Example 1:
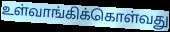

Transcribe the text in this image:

உள்வாங்கிக்கொள்வது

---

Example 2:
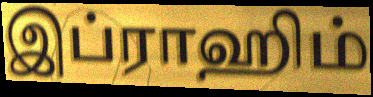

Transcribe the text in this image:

இப்ராஹிம்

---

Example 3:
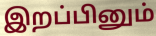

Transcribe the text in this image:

இறப்பினும்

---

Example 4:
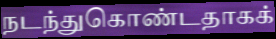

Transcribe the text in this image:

நடந்துகொண்டதாகக்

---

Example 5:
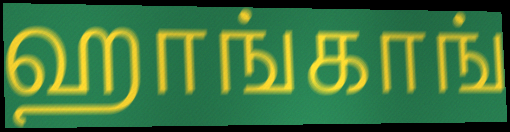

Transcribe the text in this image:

ஹாங்காங்